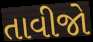
તાવીજો